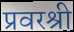
प्रवरश्री